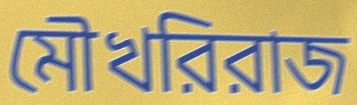
মৌখরিরাজ